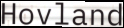
Hovland